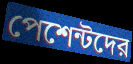
পেশেন্টদের